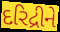
દરિદ્રીને